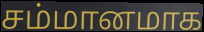
சம்மானமாக